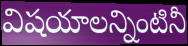
విషయాలన్నింటినీ